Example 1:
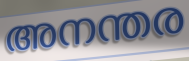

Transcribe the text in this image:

അനന്തര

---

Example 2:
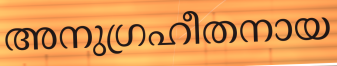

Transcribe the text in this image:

അനുഗ്രഹീതനായ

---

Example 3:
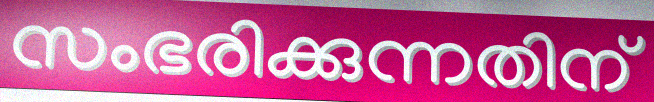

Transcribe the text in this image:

സംഭരിക്കുന്നതിന്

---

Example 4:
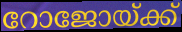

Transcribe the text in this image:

റോജോയ്ക്ക്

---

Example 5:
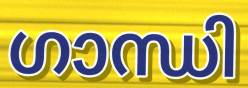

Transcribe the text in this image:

ഗാന്ധി